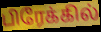
பிரேக்கில்